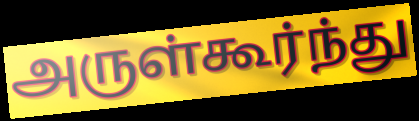
அருள்கூர்ந்து